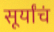
सूर्यांचं